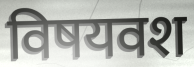
विषयवश